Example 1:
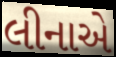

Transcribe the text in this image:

લીનાએ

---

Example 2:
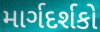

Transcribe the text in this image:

માર્ગદર્શકો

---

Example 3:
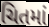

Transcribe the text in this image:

ચિતમાં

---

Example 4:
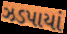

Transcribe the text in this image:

ઝડપાયાં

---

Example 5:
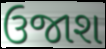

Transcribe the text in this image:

ઉજાશ